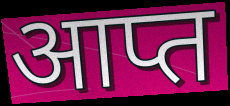
आप्त